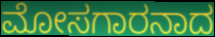
ಮೋಸಗಾರನಾದ